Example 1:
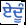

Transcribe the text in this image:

ਏਦੂੰ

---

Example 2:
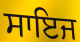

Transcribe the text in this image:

ਸਾਇਜ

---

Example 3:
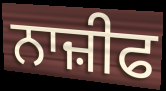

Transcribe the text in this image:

ਨਾਜ਼ੀਫ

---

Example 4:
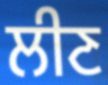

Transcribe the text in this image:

ਲੀਣ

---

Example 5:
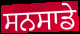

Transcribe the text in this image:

ਸਨਸਾਡੇ